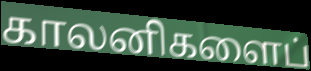
காலனிகளைப்